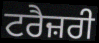
ਟਰੈਜ਼ਰੀ